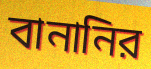
বানানির